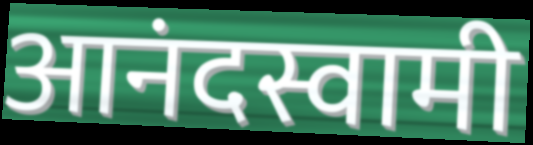
आनंदस्वामी